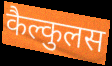
कैल्कुलस